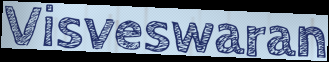
Visveswaran